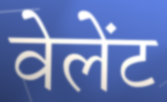
वेलेंट